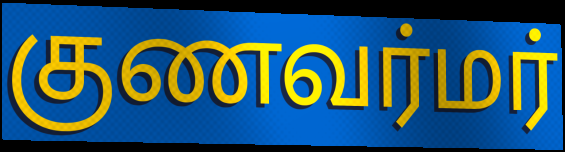
குணவர்மர்